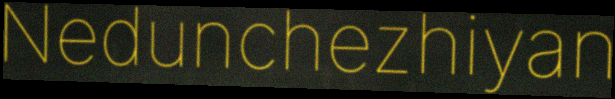
Nedunchezhiyan